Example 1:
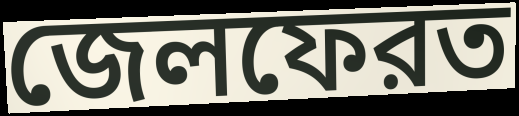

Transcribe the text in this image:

জেলফেরত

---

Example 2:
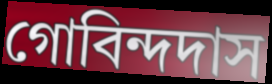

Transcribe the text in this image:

গোবিন্দদাস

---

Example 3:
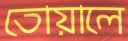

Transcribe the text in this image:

তোয়ালে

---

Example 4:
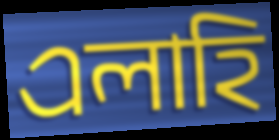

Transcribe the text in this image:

এলাহি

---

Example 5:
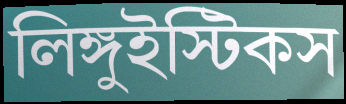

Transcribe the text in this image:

লিঙ্গুইস্টিকস